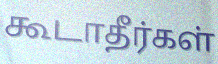
கூடாதீர்கள்